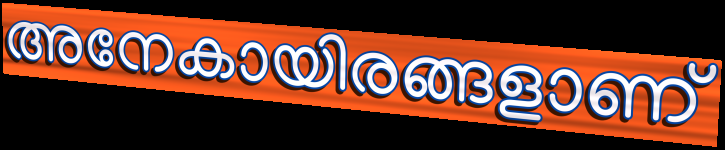
അനേകായിരങ്ങളാണ്